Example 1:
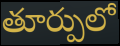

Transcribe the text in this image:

తూర్పులో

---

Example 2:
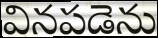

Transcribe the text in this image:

వినపడెను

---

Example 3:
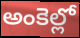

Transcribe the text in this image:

అంకెల్లో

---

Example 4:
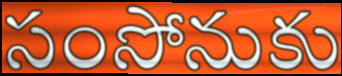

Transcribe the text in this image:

సంసోనుకు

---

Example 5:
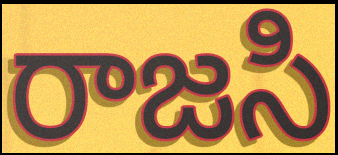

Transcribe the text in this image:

రాజసి